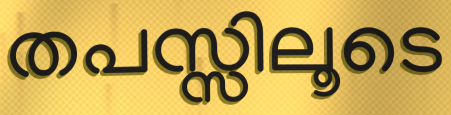
തപസ്സിലൂടെ